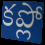
కప్లో